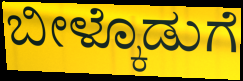
ಬೀಳ್ಕೊಡುಗೆ